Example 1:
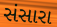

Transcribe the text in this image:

સંસારા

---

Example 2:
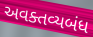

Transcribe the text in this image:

અવક્તવ્યબંધ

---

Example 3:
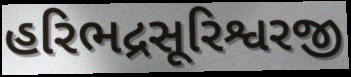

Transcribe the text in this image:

હરિભદ્રસૂરિશ્વરજી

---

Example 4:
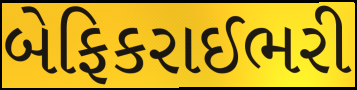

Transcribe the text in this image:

બેફિકરાઈભરી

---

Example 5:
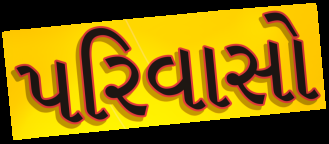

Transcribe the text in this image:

પરિવાસો